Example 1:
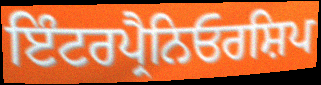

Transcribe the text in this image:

ਇੰਟਰਪ੍ਰੈਨਿਓਰਸ਼ਿਪ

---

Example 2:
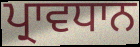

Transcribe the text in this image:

ਪ੍ਰਾਵਧਾਨ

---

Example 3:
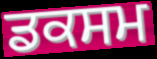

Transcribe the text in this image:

ਡਕਸਮ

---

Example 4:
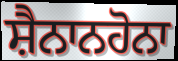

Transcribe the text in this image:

ਸ਼ੈਨਾਨਹੋਨਾ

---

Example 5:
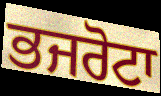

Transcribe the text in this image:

ਭਜਰੋਟਾ